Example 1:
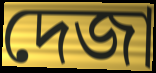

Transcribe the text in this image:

দেজা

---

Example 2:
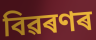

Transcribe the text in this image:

বিৱৰণৰ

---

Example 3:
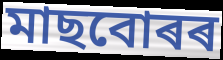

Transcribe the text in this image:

মাছবোৰৰ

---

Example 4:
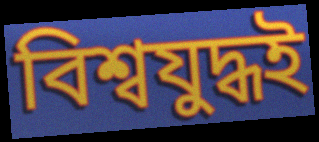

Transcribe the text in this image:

বিশ্বযুদ্ধই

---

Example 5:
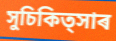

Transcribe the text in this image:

সুচিকিত্সাৰ